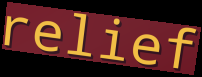
relief